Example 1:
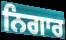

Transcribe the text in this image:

ਨਿਗਾਰ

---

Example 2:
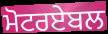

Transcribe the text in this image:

ਮੋਟਰਏਬਲ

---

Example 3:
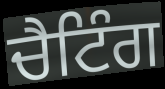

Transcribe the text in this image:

ਚੈਟਿੰਗ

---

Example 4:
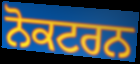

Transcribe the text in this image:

ਨੋਕਟਰਨ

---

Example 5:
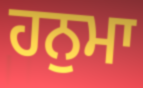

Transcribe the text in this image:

ਹਨੁਮਾ